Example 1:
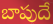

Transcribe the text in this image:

బాపుదే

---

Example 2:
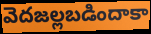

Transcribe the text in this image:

వెదజల్లబడిందాకా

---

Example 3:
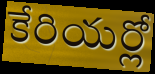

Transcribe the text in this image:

కేరియర్లో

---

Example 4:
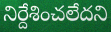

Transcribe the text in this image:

నిర్దేశించలేదని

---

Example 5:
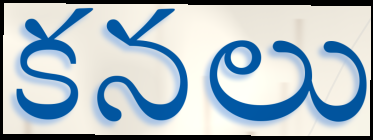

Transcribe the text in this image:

కనలు